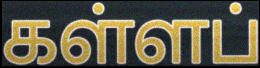
கள்ளப்